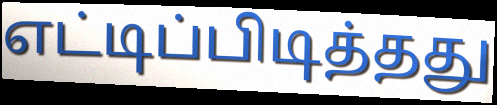
எட்டிப்பிடித்தது